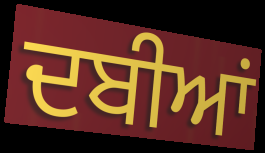
ਦਬੀਆਂ